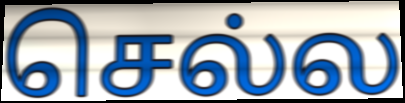
செல்ல